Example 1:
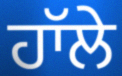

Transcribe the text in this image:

ਹਾੱਲੇ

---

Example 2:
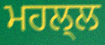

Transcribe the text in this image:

ਮਹਲ੍ਲ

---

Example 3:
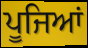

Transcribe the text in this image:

ਪੂਜਿਆਂ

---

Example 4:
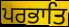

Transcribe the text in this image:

ਪਰਭਾਤਿ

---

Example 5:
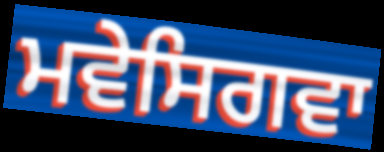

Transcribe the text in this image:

ਮਵੇਸਿਗਵਾ